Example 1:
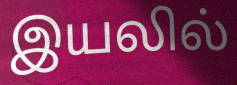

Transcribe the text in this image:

இயலில்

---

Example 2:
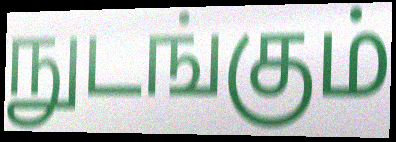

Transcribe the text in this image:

நுடங்கும்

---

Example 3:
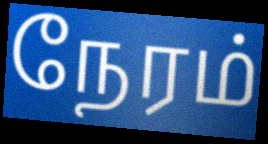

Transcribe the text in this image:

நேரம்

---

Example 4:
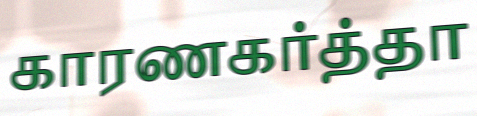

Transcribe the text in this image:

காரணகர்த்தா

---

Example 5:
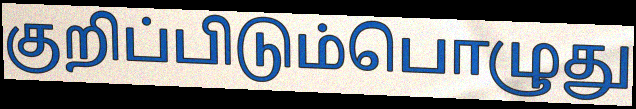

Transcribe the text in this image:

குறிப்பிடும்பொழுது